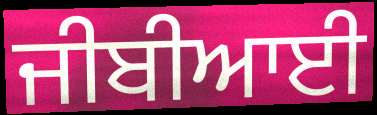
ਜੀਬੀਆਈ